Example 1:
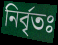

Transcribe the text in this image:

নির্বৃতঃ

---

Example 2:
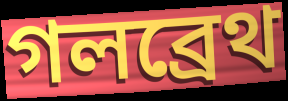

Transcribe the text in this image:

গলব্রেথ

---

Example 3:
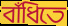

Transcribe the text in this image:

বাঁধিতে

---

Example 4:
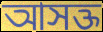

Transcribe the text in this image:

আসক্ত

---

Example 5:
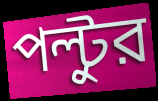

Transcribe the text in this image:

পল্টুর